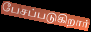
பேசப்படுகிறார்